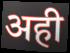
अही